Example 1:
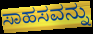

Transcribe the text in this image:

ಸಾಹಸವನ್ನು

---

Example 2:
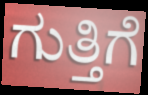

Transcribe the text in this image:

ಗುತ್ತಿಗೆ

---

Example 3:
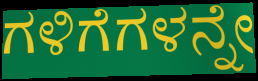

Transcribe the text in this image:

ಗಳಿಗೆಗಳನ್ನೇ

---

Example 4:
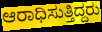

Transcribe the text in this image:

ಆರಾಧಿಸುತ್ತಿದ್ದರು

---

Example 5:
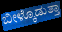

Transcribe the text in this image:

ಬೀಳ್ಕೊಡುತ್ತಾ